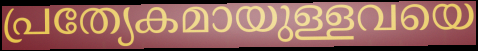
പ്രത്യേകമായുള്ളവയെ